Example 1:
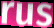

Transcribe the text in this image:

rus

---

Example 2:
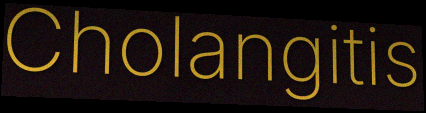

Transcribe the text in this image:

Cholangitis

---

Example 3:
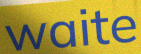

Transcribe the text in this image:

waite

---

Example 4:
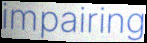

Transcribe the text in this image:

impairing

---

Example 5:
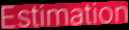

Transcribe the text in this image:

Estimation